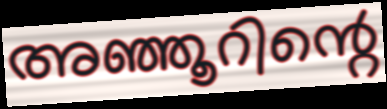
അഞ്ഞൂറിന്റെ